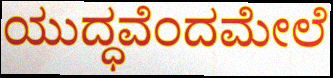
ಯುದ್ಧವೆಂದಮೇಲೆ